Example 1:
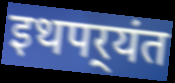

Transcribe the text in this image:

इथपर्यंत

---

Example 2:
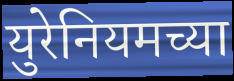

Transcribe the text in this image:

युरेनियमच्या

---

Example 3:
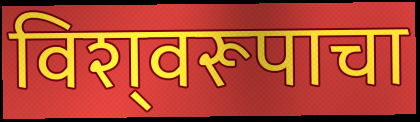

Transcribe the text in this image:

विश्वरूपाचा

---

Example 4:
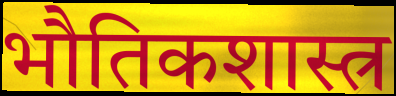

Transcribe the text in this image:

भौतिकशास्त्र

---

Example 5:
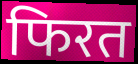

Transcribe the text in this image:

फिरत